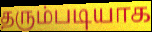
தரும்படியாக